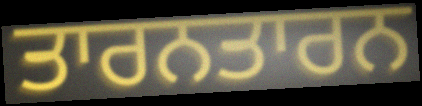
ਤਾਰਨਤਾਰਨ